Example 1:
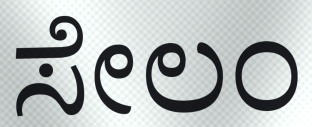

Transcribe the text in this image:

ಸೇಲಂ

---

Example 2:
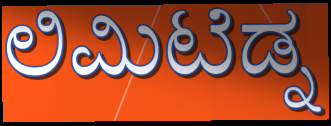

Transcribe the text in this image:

ಲಿಮಿಟೆಡ್ನ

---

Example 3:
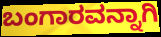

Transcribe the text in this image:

ಬಂಗಾರವನ್ನಾಗಿ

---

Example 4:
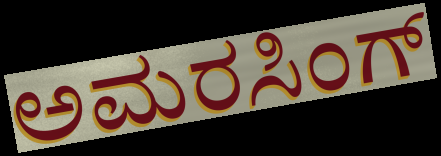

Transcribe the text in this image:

ಅಮರಸಿಂಗ್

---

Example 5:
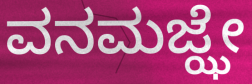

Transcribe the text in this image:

ವನಮಜ್ಝೇ